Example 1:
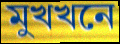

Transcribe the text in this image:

মুখখনে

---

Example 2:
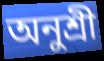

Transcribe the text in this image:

অনুশ্ৰী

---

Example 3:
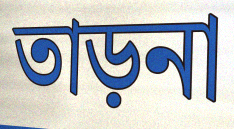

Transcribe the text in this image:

তাড়না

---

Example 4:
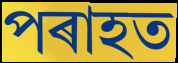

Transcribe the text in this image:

পৰাহত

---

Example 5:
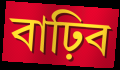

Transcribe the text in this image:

বাঢ়িব